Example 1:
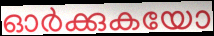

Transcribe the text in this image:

ഓർക്കുകയോ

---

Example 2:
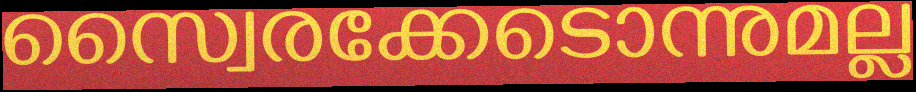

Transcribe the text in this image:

സ്വൈരക്കേടൊന്നുമല്ല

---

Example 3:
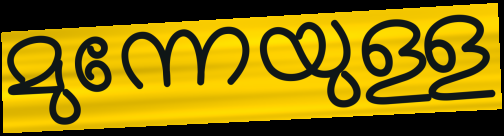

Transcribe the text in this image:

മുന്നേയുള്ള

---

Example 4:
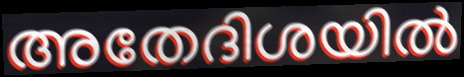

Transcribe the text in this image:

അതേദിശയിൽ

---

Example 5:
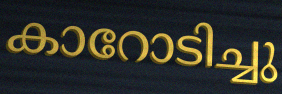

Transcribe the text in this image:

കാറോടിച്ചു